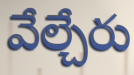
వేల్చేరు